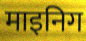
माइनिग